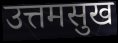
उत्तमसुख